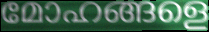
മോഹങ്ങളെ